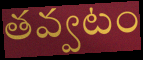
తవ్వటం